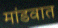
मांडवात